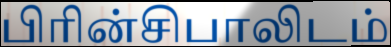
பிரின்சிபாலிடம்